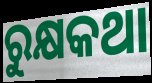
ରୁକ୍ଷକଥା